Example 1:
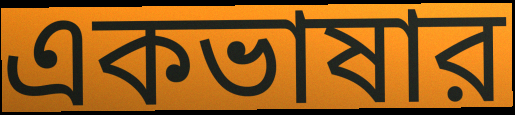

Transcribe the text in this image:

একভাষার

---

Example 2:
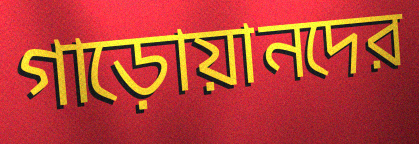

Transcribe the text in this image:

গাড়োয়ানদের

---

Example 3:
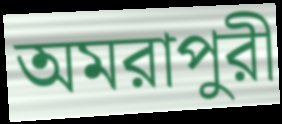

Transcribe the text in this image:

অমরাপুরী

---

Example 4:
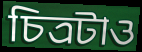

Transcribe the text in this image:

চিত্রটাও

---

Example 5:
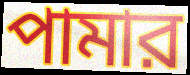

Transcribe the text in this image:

পামার